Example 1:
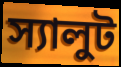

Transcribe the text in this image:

স্যালুট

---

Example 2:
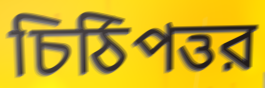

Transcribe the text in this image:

চিঠিপত্তর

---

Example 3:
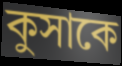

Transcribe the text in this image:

কুসাকে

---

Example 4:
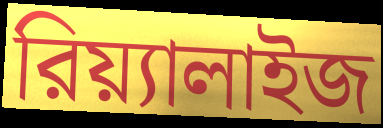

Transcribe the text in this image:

রিয়্যালাইজ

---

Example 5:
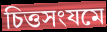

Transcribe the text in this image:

চিত্তসংযমে